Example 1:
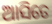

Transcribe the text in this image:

ଆସିତେ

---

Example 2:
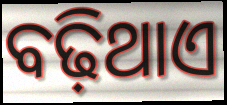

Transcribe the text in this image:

ବଢ଼ିଥାଏ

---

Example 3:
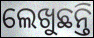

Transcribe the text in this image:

ଲେଖୁଛନ୍ତି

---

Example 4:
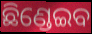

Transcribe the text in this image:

ଛିଣ୍ଡେଇବ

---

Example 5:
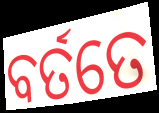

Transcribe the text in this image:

ବର୍ତତେ